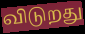
விடுறது